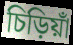
চিড়িয়াঁ